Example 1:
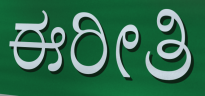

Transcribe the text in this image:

ಈರೀತಿ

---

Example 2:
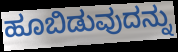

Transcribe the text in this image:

ಹೂಬಿಡುವುದನ್ನು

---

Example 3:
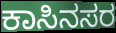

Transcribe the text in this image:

ಕಾಸಿನಸರ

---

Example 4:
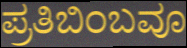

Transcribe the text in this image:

ಪ್ರತಿಬಿಂಬವೂ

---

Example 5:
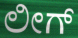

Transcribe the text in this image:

ಲೀಗ್